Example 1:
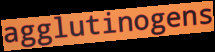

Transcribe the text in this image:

agglutinogens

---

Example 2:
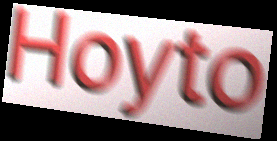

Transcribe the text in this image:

Hoyto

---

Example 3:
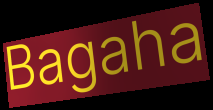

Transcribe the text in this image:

Bagaha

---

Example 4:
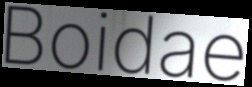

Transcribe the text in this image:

Boidae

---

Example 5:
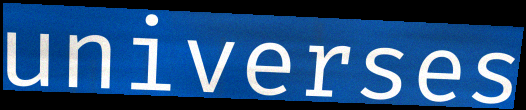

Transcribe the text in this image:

universes